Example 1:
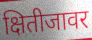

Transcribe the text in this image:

क्षितीजावर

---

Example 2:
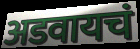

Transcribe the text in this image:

अडवायचं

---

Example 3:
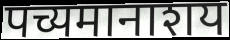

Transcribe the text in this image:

पच्यमानाशय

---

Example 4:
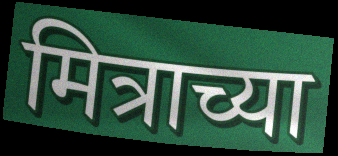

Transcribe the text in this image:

मित्राच्या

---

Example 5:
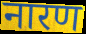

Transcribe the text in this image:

नारण